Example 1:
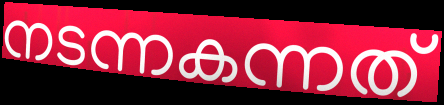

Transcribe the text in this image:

നടന്നകന്നത്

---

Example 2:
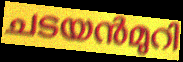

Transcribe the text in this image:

ചടയൻമുറി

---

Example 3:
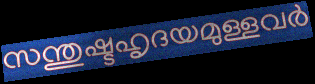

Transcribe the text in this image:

സന്തുഷ്ടഹൃദയമുള്ളവർ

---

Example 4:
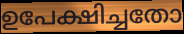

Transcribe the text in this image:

ഉപേക്ഷിച്ചതോ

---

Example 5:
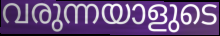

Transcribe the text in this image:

വരുന്നയാളുടെ